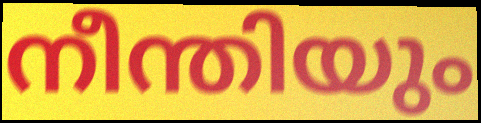
നീന്തിയും